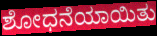
ಶೋಧನೆಯಾಯಿತು